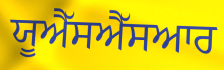
ਯੂਐੱਸਐੱਸਆਰ